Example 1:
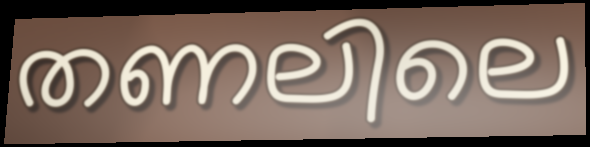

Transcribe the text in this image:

തണലിലെ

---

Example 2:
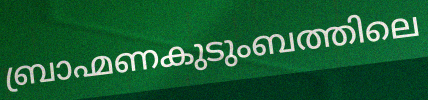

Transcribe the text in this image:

ബ്രാഹ്മണകുടുംബത്തിലെ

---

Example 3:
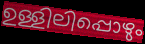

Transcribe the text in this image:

ഉള്ളിലിപ്പൊഴും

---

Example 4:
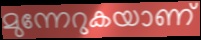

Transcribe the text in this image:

മുന്നേറുകയാണ്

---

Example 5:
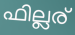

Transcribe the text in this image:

ഫില്ലര്